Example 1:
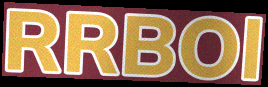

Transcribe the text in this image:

RRBOl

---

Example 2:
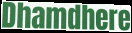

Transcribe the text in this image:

Dhamdhere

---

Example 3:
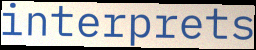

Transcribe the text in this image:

interprets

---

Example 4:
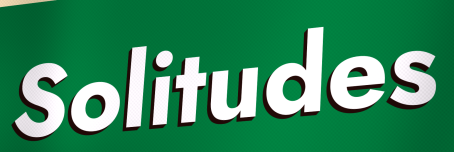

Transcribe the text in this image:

Solitudes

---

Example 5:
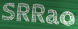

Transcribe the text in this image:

SRRao